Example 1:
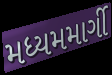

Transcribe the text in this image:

મધ્યમમાર્ગી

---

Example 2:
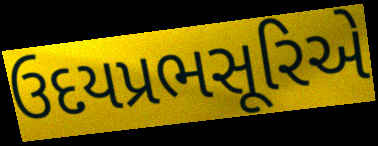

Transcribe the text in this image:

ઉદયપ્રભસૂરિએ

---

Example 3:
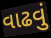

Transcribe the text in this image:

વાઢવું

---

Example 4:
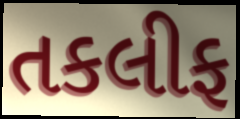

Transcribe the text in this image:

તકલીફ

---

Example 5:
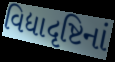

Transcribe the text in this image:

વિદ્યાદૃષ્ટિનાં